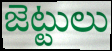
జెట్టులు